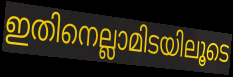
ഇതിനെല്ലാമിടയിലൂടെ